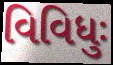
વિવિધુઃ